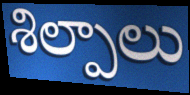
శిల్పాలు